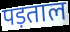
पड़ताल